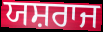
ਯਸ਼ਰਾਜ